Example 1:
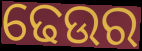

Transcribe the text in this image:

ଢେଉର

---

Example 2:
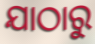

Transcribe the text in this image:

ଯାଠାରୁ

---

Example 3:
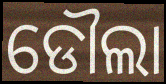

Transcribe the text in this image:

ଡୌଲା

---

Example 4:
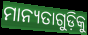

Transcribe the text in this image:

ମାନ୍ୟତାଗୁଡ଼ିକୁ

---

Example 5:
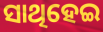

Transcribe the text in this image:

ସାଥିହେଇ